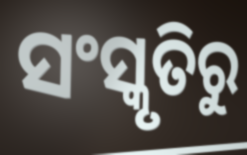
ସଂସ୍କୃତିରୁ